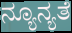
ನ್ಯೂನ್ಯತೆ